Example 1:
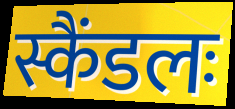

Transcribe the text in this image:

स्कैंडलः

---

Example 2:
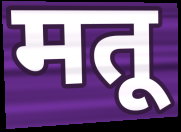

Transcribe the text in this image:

मतू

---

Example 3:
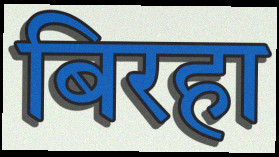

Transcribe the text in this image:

बिरहा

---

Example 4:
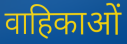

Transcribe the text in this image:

वाहिकाओं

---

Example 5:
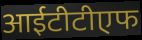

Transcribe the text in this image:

आईटीटीएफ